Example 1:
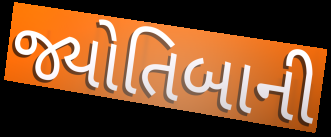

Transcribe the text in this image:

જ્યોતિબાની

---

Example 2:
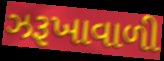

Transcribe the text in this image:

ઝરૂખાવાળી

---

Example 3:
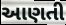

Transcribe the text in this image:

આણતી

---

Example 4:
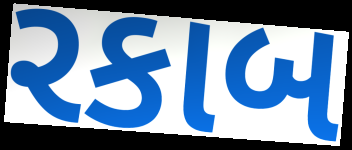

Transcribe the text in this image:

રકાબ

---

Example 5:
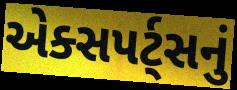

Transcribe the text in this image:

એક્સપર્ટ્સનું